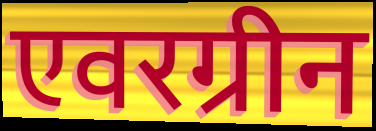
एवरग्रीन